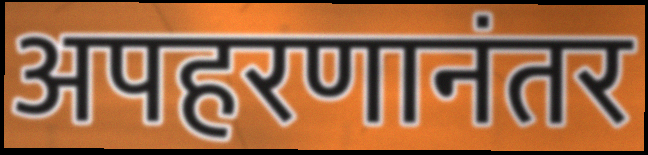
अपहरणानंतर